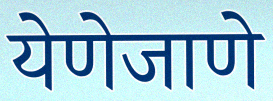
येणेजाणे